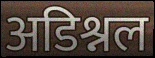
अडिश्नल